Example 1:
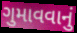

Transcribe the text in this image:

ગુમાવવાનું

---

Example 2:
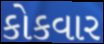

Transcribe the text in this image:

કોકવાર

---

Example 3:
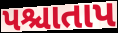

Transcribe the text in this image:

પશ્ચાતાપ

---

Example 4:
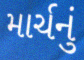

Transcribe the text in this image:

માર્ચનું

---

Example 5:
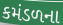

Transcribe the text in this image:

કમંડળના